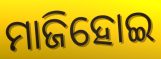
ମାଜିହୋଇ